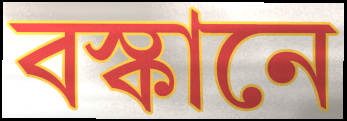
বস্কানে